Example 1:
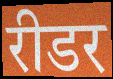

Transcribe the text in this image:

रीडर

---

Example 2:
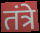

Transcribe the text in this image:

तंत्रे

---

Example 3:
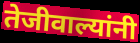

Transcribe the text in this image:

तेजीवाल्यांनी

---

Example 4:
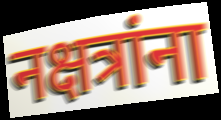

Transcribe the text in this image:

नक्षत्रांना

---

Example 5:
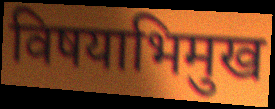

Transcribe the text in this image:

विषयाभिमुख